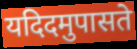
यदिदमुपासते